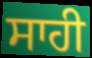
ਸਾਹੀ